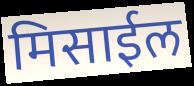
मिसाईल